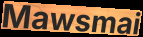
Mawsmai